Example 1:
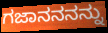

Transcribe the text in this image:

ಗಜಾನನನನ್ನು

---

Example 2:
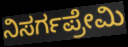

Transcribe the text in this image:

ನಿಸರ್ಗಪ್ರೇಮಿ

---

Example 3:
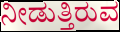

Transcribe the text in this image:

ನೀಡುತ್ತಿರುವ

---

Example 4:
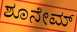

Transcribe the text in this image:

ಶೂನೇಮ್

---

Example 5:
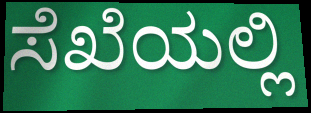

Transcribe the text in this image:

ಸೆಖೆಯಲ್ಲಿ